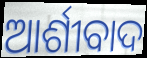
ଆର୍ଶୀବାଦ